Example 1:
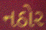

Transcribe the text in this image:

નઠોર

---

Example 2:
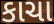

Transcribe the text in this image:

કાચા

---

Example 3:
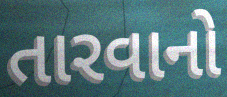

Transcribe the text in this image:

તારવાનો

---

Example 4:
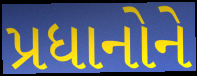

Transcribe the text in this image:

પ્રધાનોને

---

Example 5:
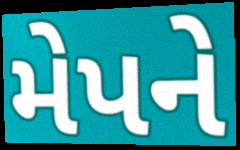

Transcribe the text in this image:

મેપને